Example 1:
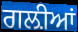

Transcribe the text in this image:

ਗਲ਼ੀਆਂ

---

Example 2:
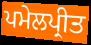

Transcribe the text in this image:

ਪਮੇਲਪ੍ਰੀਤ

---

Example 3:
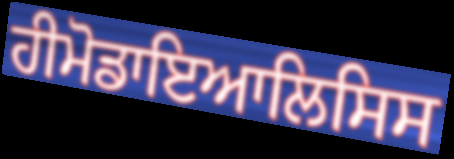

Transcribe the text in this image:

ਹੀਮੋਡਾਇਆਲਿਸਿਸ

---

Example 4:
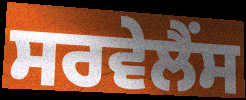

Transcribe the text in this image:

ਸਰਵੇਲੈਂਸ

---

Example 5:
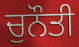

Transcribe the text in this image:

ਚੁਨੌਤੀ